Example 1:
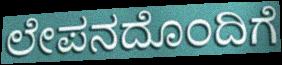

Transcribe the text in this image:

ಲೇಪನದೊಂದಿಗೆ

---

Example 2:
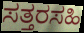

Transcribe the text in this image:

ಸತ್ತರಸಹಿ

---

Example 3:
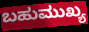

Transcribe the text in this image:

ಬಹುಮುಖ್ಯ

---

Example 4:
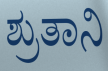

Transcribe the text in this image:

ಶ್ರುತಾನಿ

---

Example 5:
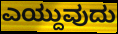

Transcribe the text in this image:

ಎಯ್ದುವುದು